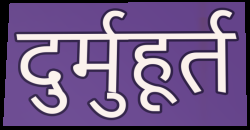
दुर्मुहूर्त